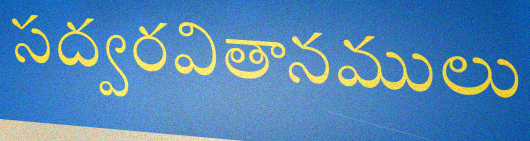
సద్వరవితానములు